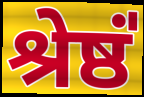
श्रेष्ठं॑